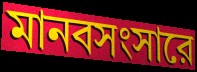
মানবসংসারে